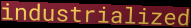
industrialized